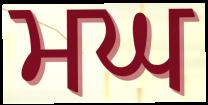
ਮਘ